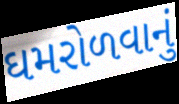
ઘમરોળવાનું